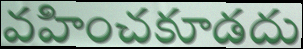
వహించకూడదు